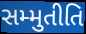
સમ્મુતીતિ